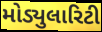
મોડ્યુલારિટી